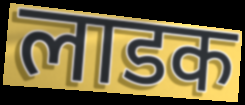
लाडक